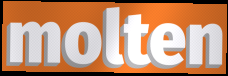
molten